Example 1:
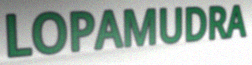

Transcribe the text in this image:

LOPAMUDRA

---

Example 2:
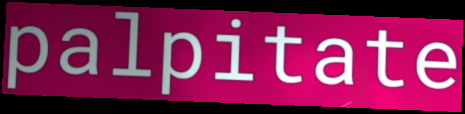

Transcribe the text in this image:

palpitate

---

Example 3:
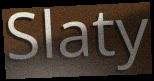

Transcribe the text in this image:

Slaty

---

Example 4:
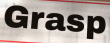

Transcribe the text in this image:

Grasp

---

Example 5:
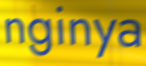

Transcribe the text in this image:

nginya